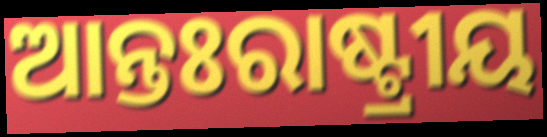
ଆନ୍ତଃରାଷ୍ଟ୍ରୀୟ